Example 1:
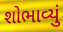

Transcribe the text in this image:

શોભાવ્યું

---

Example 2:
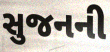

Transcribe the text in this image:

સુજનની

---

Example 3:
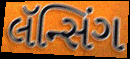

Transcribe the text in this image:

લૅન્સિંગ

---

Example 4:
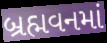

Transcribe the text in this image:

બ્રહ્મવનમાં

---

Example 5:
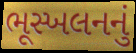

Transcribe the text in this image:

ભૂસ્ખલનનું